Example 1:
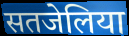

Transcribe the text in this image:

सतजेलिया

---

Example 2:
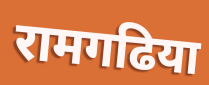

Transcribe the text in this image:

रामगढिया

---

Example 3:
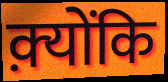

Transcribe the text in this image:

क़्योंकि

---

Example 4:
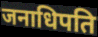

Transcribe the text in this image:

जनाधिपति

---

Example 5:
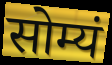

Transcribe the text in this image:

सोम्यं